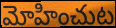
మోహించుట